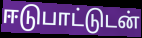
ஈடுபாட்டுடன்